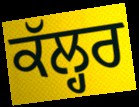
ਕੱਲ੍ਹਰ